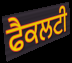
ਫੈਕਲਟੀ